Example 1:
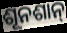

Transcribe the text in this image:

ଶୂନଶାନ୍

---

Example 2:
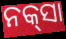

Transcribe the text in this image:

ନକ୍‍ସା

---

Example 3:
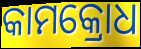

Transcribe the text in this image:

କାମକ୍ରୋଧ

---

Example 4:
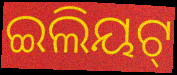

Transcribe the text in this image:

ଇଲିୟଟ୍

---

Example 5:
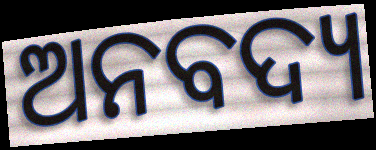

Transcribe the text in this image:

ଅନବଦ୍ୟ